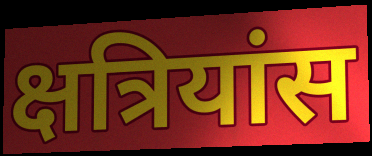
क्षत्रियांस